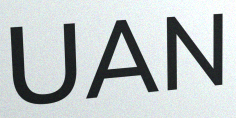
UAN